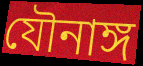
যৌনাঙ্গ